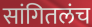
सांगितलंच